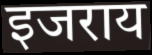
इजराय